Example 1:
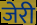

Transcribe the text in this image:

जेरी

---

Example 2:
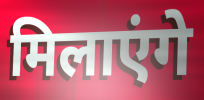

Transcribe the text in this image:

मिलाएंगे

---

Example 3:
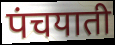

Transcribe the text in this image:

पंचयाती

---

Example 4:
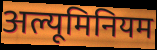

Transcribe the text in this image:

अल्यूमिनियम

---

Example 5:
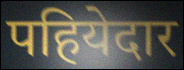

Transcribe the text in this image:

पहियेदार